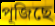
পূজিছে